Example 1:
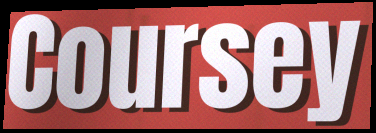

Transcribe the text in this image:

Coursey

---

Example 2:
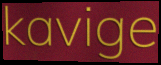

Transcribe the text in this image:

kavige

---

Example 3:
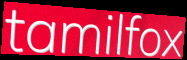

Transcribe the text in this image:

tamilfox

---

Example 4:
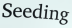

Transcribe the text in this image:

Seeding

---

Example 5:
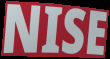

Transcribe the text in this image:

NISE